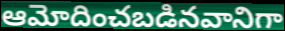
ఆమోదించబడినవానిగా